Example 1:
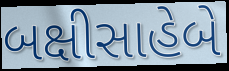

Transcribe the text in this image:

બક્ષીસાહેબે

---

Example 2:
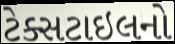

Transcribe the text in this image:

ટેક્સટાઇલનો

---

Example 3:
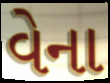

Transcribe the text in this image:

વેના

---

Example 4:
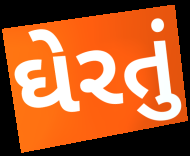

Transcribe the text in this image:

ઘેરતું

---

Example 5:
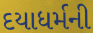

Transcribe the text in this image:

દયાધર્મની